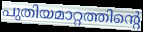
പുതിയമാറ്റത്തിന്റെ